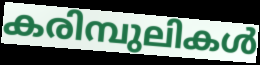
കരിമ്പുലികൾ